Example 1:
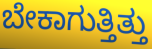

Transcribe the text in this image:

ಬೇಕಾಗುತ್ತಿತ್ತು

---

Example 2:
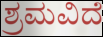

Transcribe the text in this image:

ಶ್ರಮವಿದೆ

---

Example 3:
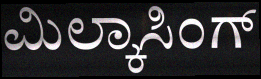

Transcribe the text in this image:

ಮಿಲ್ಕಾಸಿಂಗ್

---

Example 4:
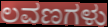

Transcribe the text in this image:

ಲವಣಗಳು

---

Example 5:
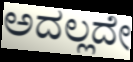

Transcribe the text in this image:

ಅದಲ್ಲದೇ